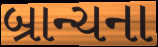
બ્રાન્ચના